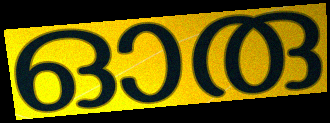
ഓരു